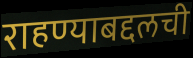
राहण्याबद्दलची